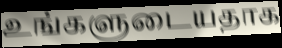
உங்களுடையதாக